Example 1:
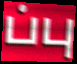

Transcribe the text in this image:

ப்பு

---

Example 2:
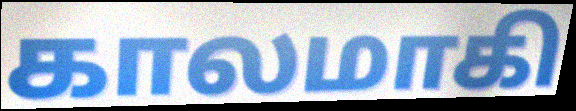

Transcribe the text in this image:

காலமாகி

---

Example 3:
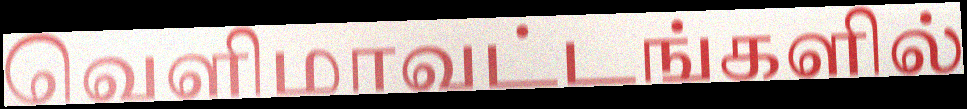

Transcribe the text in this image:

வெளிமாவட்டங்களில்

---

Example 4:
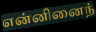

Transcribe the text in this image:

என்னினைந்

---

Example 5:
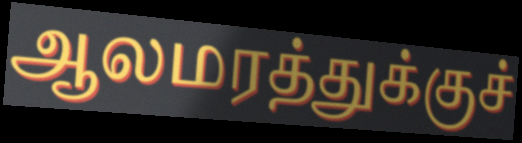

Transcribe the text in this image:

ஆலமரத்துக்குச்